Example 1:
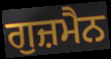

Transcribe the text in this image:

ਗੁਜ਼ਮੈਨ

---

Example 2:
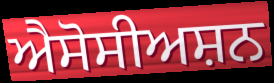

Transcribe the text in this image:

ਐਸੋਸੀਅਸ਼ਨ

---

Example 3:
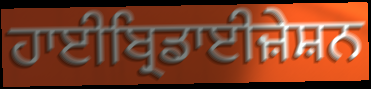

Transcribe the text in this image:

ਹਾਈਬ੍ਰਿਡਾਈਜ਼ੇਸ਼ਨ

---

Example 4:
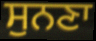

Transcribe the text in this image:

ਸੁਨਣਾ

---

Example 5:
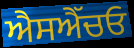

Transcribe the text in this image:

ਐਸਐੱਚਓ